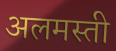
अलमस्ती